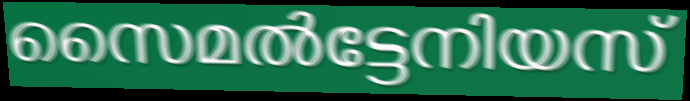
സൈമൽട്ടേനിയസ്